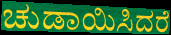
ಚುಡಾಯಿಸಿದರೆ